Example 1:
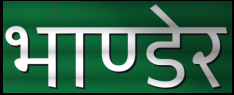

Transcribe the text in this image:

भाण्डेर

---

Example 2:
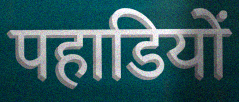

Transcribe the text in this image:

पहाडियों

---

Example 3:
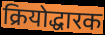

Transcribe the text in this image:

क्रियोद्धारक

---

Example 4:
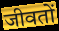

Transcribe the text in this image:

जीवतों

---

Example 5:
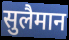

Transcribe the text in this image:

सुलैमान